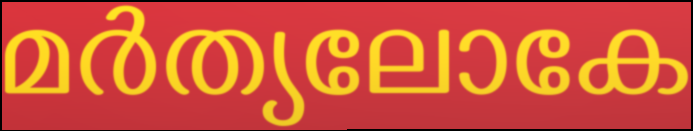
മർത്യലോകേ